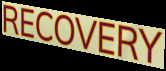
RECOVERY